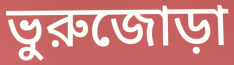
ভুরুজোড়া